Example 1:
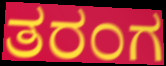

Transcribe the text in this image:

ತರಂಗ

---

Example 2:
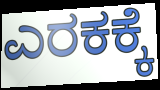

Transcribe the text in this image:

ಎರಕಕ್ಕೆ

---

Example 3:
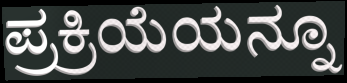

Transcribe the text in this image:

ಪ್ರಕ್ರಿಯೆಯನ್ನೂ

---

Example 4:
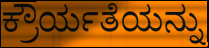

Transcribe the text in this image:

ಕ್ರೌರ್ಯತೆಯನ್ನು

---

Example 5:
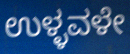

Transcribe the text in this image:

ಉಳ್ಳವಳೇ